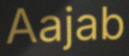
Aajab